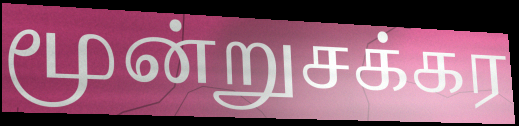
மூன்றுசக்கர